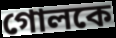
গোলকে